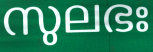
സുലഭഃ